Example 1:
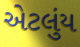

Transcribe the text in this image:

એટલુંય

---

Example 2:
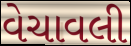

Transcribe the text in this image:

વેચાવલી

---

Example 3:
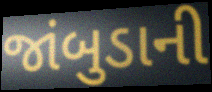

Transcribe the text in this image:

જાંબુડાની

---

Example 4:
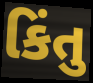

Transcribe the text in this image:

કિંતુ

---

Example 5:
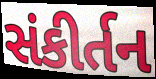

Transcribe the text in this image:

સંકીર્તન